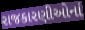
રાજકારણીઓનાં